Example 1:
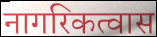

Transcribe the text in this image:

नागरिकत्वास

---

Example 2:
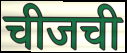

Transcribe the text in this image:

चीजची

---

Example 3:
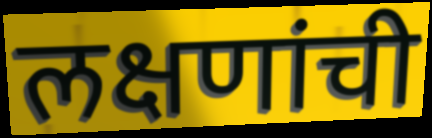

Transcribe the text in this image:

लक्षणांची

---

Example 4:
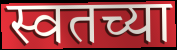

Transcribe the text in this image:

स्वतच्या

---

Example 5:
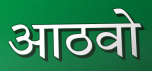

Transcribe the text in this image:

आठवो